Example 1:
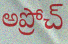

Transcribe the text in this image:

అప్రోచ్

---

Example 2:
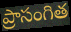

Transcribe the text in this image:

ప్రాసంగిత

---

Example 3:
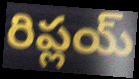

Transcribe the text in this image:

రిప్లయ్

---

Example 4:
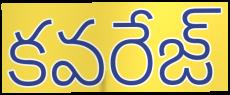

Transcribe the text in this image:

కవరేజ్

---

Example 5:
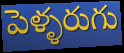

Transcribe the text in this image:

పెళ్ళరుగు